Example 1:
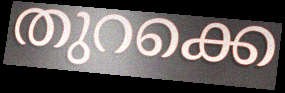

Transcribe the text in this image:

തുറക്കെ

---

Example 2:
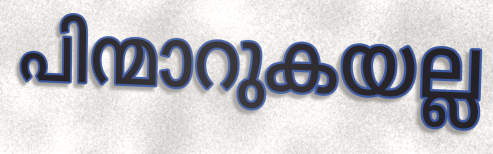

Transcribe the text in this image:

പിന്മാറുകയല്ല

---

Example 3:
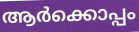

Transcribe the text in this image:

ആർക്കൊപ്പം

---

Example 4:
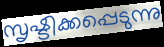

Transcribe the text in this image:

സൃഷ്ടിക്കപ്പെടുന്നു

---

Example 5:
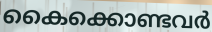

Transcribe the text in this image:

കൈക്കൊണ്ടവർ